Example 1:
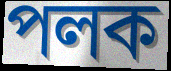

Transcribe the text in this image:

পলক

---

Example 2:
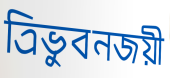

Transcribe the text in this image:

ত্রিভুবনজয়ী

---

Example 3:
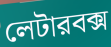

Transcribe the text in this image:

লেটারবক্স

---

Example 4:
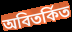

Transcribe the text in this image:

অবিতর্কিত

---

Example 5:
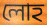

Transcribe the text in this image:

লোহ